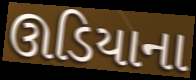
ઊડિયાના